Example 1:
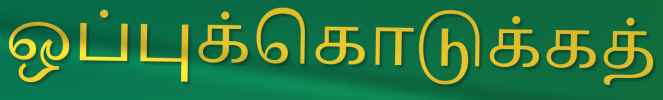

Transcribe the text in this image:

ஒப்புக்கொடுக்கத்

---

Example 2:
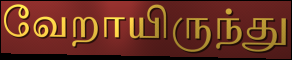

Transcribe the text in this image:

வேறாயிருந்து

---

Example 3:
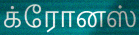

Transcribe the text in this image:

க்ரோனஸ்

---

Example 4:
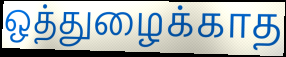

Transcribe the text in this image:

ஒத்துழைக்காத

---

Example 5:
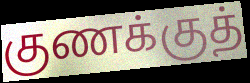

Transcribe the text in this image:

குணக்குத்